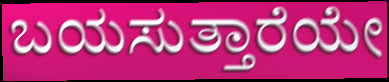
ಬಯಸುತ್ತಾರೆಯೇ